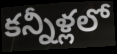
కన్నీళ్లలో